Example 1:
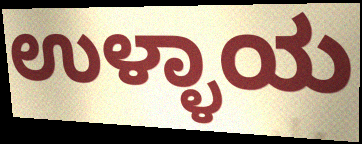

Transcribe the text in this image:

ಉಳ್ಳಾಯ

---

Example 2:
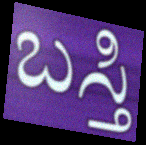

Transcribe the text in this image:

ಬಸ್ತಿ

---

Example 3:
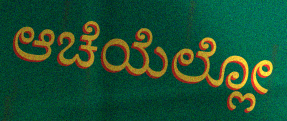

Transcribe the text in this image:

ಆಚೆಯೆಲ್ಲೋ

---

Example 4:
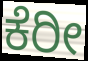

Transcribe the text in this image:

ಕೆರೀ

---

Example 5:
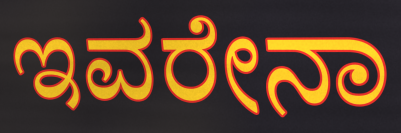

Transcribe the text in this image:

ಇವರೇನಾ